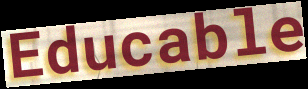
Educable